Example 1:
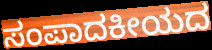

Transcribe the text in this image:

ಸಂಪಾದಕೀಯದ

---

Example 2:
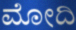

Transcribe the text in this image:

ಮೋದಿ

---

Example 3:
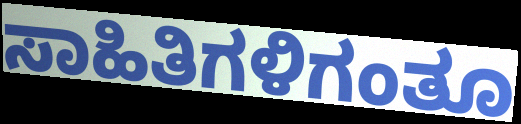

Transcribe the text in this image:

ಸಾಹಿತಿಗಳಿಗಂತೂ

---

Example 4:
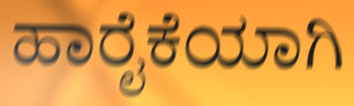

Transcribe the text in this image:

ಹಾರೈಕೆಯಾಗಿ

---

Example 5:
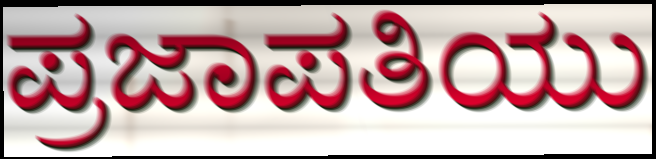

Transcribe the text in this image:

ಪ್ರಜಾಪತಿಯು